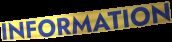
INFORMATION